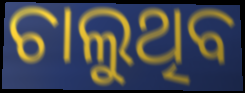
ଚାଲୁଥିବ